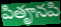
పితౄనపి